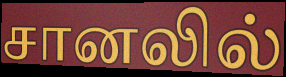
சானலில்